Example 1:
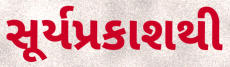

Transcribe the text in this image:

સૂર્યપ્રકાશથી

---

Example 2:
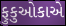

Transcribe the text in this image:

ફુકુઓકાએ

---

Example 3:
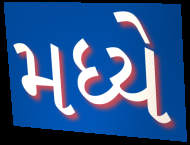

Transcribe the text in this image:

મધ્યે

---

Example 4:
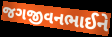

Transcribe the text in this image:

જગજીવનભાઈને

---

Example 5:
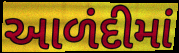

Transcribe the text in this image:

આળંદીમાં